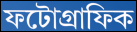
ফটোগ্রাফিক